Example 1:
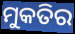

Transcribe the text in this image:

ମୁକତିର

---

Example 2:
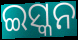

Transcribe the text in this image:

ଇସ୍କନ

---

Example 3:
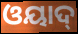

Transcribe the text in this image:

ଓୟାଦ୍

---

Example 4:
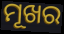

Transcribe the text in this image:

ମୂଖର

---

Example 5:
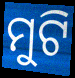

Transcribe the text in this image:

ମୁଟି